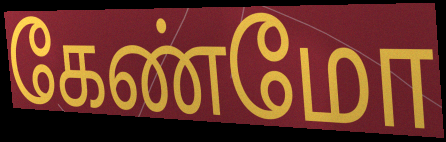
கேண்மோ